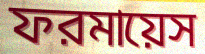
ফরমায়েস